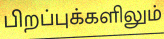
பிறப்புக்களிலும்